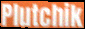
Plutchik